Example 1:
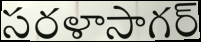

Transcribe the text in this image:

సరళాసాగర్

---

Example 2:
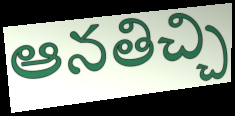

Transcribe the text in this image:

ఆనతిచ్చి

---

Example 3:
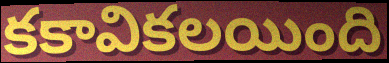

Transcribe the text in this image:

కకావికలయింది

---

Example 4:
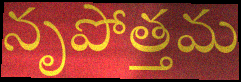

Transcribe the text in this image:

నృపోత్తమ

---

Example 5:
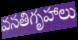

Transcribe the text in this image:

వసతిగృహాలు